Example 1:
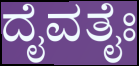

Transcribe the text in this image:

ದೈವತೈಃ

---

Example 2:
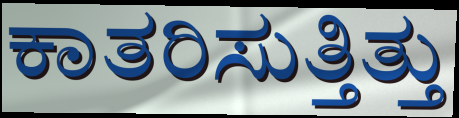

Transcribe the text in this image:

ಕಾತರಿಸುತ್ತಿತ್ತು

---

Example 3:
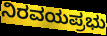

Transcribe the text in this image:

ನಿರವಯಪ್ರಭು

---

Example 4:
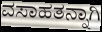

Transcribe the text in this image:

ವಸಾಹತನ್ನಾಗಿ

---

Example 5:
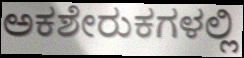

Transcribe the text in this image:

ಅಕಶೇರುಕಗಳಲ್ಲಿ